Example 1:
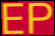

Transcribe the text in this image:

EP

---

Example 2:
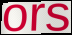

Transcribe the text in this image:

ors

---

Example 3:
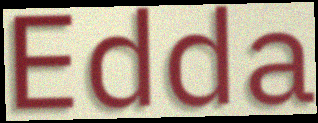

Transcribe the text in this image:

Edda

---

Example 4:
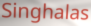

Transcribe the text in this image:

Singhalas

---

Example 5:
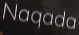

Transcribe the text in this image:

Naqada